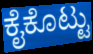
ಕೈಕೊಟ್ಟು